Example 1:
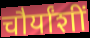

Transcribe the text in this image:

चौर्यांशीं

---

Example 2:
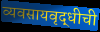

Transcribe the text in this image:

व्यवसायवृद्धीची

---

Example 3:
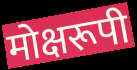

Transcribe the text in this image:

मोक्षरूपी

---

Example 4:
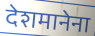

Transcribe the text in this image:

देशमानेना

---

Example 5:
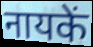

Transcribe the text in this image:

नायकें